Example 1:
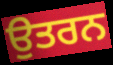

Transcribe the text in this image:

ਉਤਰਨ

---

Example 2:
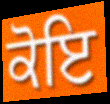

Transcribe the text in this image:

ਕੋਇ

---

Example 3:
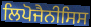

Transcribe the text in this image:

ਲਿਪੋਜੈਨੀਸਿਸ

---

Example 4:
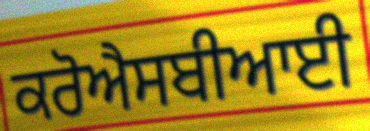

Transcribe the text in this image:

ਕਰੋਐਸਬੀਆਈ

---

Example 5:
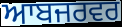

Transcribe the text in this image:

ਆਬਜਰਵਰ